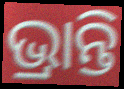
ଭ୍ରାନ୍ତି